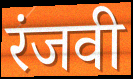
रंजवी